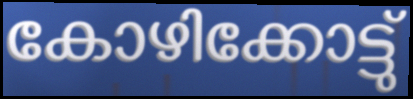
കോഴിക്കോട്ടു്